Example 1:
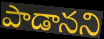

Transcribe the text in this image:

పాడానని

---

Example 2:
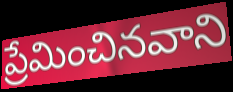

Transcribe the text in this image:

ప్రేమించినవాని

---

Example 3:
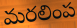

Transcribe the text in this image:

మరలింప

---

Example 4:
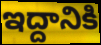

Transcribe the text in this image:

ఇద్దానికి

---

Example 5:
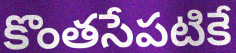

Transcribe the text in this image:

కొంతసేపటికే